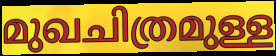
മുഖചിത്രമുള്ള